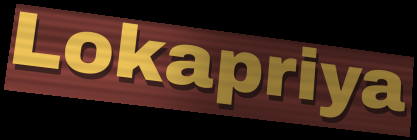
Lokapriya